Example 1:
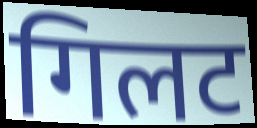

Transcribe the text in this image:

गिलट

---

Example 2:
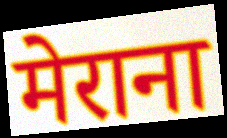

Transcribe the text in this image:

मेराना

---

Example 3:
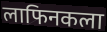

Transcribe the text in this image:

लाफिनकला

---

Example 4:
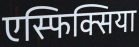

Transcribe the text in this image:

एस्फिक्सिया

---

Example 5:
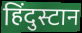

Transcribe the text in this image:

हिंदुस्टान